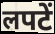
लपटें